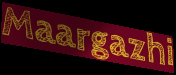
Maargazhi